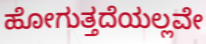
ಹೋಗುತ್ತದೆಯಲ್ಲವೇ